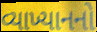
વ્યાખ્યાનનો